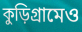
কুড়িগ্রামেও